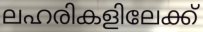
ലഹരികളിലേക്ക്